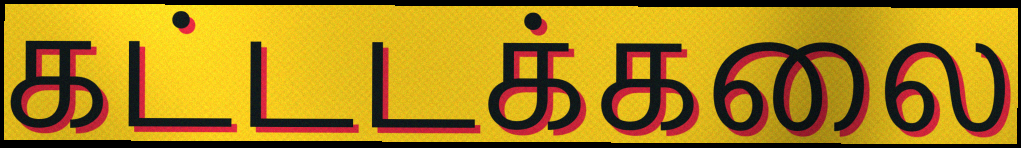
கட்டடக்கலை